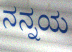
ನನ್ನಯ